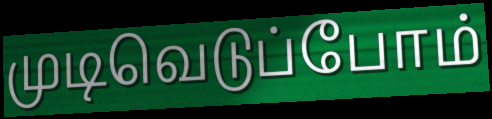
முடிவெடுப்போம்